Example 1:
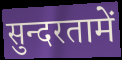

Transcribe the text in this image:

सुन्दरतामें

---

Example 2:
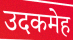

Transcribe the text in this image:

उदकमेह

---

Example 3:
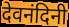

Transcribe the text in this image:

देवनंदिनी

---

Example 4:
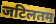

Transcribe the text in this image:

जटिलतम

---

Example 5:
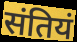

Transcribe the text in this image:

संतियं